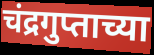
चंद्रगुप्ताच्या